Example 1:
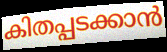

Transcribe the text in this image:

കിതപ്പടക്കാൻ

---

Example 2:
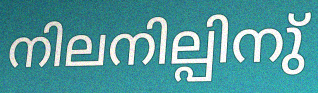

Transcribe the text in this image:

നിലനില്പിനു്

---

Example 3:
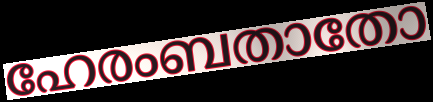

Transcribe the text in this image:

ഹേരംബതാതോ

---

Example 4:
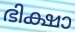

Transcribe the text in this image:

ഭിക്ഷാ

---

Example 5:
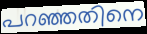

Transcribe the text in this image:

പറഞ്ഞതിനെ